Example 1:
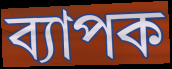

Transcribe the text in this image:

ব্যাপক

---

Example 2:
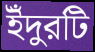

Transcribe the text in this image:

ইঁদুরটি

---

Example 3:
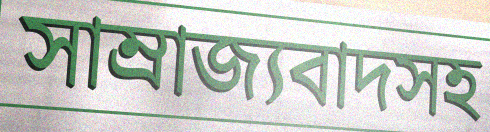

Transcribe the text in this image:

সাম্রাজ্যবাদসহ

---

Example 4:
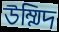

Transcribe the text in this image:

উম্মিদ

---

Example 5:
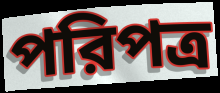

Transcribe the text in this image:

পরিপত্র